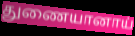
துணையானாய்